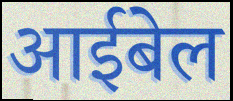
आईबेल